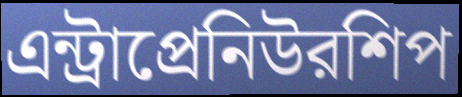
এন্ট্রাপ্রেনিউরশিপ